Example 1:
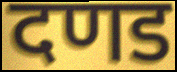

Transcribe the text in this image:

दणड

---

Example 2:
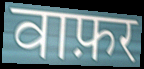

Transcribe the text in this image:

वाफ़र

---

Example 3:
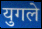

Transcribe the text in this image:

युगले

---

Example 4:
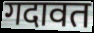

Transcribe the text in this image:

गदावत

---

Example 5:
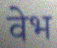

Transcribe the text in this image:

वेभ